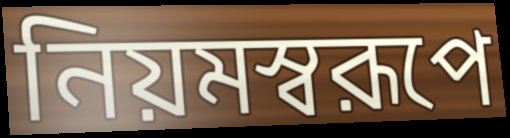
নিয়মস্বরূপে